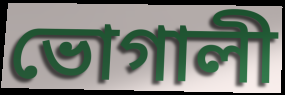
ভোগালী